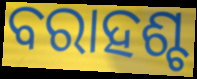
ବରାହଶ୍ଚ